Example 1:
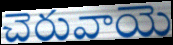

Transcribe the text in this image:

చెరువాయె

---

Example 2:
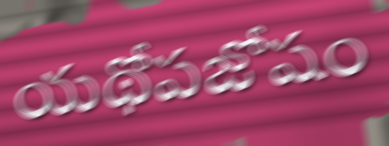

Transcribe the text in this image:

యథోపజోషం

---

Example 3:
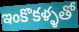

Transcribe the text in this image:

ఇంకొకళ్ళతో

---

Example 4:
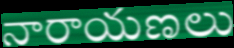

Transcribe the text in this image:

నారాయణలు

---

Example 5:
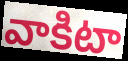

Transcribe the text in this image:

వాకిటా